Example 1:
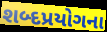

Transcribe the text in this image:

શબ્દપ્રયોગના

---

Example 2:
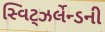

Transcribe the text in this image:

સ્વિટ્ઝર્લેન્ડની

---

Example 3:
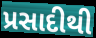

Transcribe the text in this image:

પ્રસાદીથી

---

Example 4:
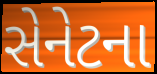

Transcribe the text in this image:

સેનેટના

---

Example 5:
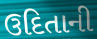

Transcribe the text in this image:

ઉદિતાની